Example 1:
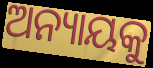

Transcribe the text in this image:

ଅନ୍ୟାୟକୁ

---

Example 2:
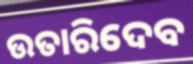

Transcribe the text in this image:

ଉତାରିଦେବ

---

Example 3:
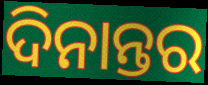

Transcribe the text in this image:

ଦିନାନ୍ତର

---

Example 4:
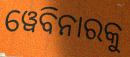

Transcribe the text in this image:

ୱେବିନାରକୁ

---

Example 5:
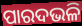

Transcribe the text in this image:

ପାରଦଭଳି